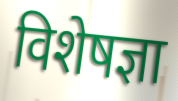
विशेषज्ञा